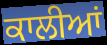
ਕਾਲੀਆਂ